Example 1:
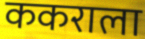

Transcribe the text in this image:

ककराला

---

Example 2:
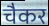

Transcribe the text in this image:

चैकर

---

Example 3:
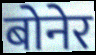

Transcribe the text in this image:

बोनेर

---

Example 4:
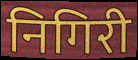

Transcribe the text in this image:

निगिरी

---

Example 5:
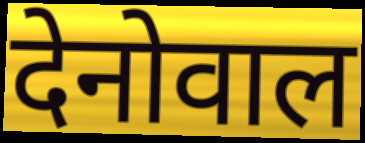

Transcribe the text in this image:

देनोवाल